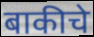
बाकीचे